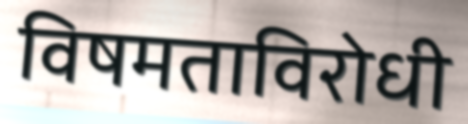
विषमताविरोधी